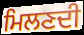
ਮਿਲਣਦੀ